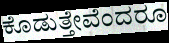
ಕೊಡುತ್ತೇವೆಂದರೂ